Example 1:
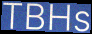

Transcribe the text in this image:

TBHs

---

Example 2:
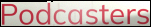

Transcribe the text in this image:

Podcasters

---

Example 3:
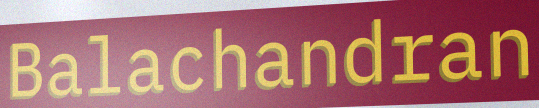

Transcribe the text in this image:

Balachandran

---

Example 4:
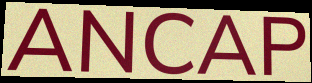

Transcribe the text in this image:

ANCAP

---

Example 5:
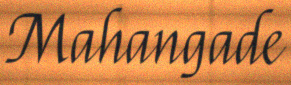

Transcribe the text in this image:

Mahangade